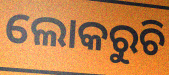
ଲୋକରୁଚି